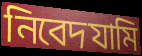
নিবেদযামি